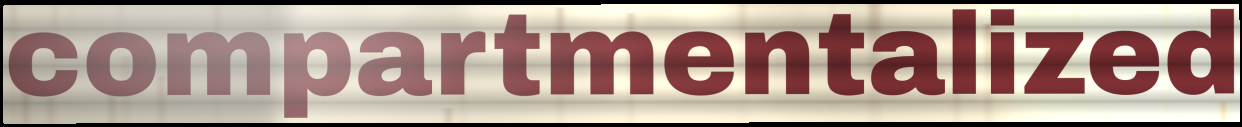
compartmentalized